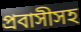
প্রবাসীসহ